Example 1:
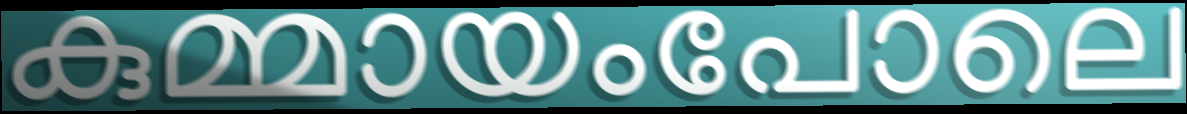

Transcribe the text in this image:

കുമ്മായംപോലെ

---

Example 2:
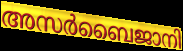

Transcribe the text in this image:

അസർബൈജാനി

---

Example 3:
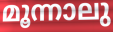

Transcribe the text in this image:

മൂന്നാലു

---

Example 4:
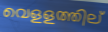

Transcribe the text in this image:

വെളളത്തില്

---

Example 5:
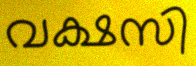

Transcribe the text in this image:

വക്ഷസി